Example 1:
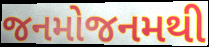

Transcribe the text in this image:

જનમોજનમથી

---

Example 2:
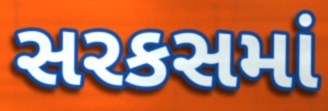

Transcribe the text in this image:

સરકસમાં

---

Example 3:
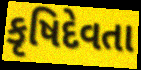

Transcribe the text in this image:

કૃષિદેવતા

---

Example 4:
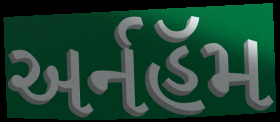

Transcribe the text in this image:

અર્નહૅમ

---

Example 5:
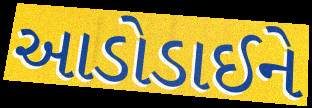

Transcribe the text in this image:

આડોડાઈને